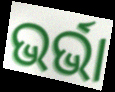
ଭର୍ଭା